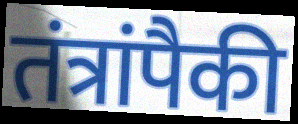
तंत्रांपैकी